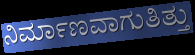
ನಿರ್ಮಾಣವಾಗುತಿತ್ತು